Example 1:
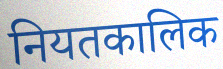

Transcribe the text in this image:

नियतकालिक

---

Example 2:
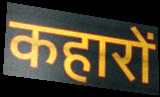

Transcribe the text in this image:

कहारों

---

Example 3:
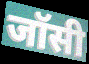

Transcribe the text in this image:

जॉसी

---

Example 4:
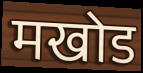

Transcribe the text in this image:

मखोड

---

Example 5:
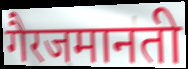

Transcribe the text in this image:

गैरजमानती